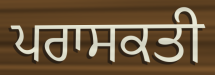
ਪਰਾਸਕਤੀ